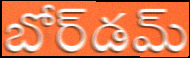
బోర్‌డమ్